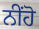
ਨੀਂਹੋ